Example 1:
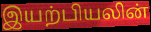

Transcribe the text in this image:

இயற்பியலின்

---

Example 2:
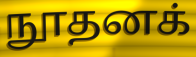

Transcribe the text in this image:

நூதனக்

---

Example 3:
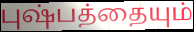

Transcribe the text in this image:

புஷ்பத்தையும்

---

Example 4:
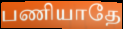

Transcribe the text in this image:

பணியாதே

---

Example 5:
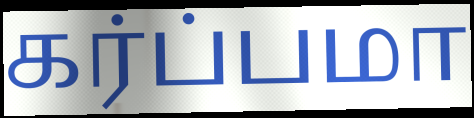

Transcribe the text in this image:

கர்ப்பமா